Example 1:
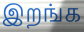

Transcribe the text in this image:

இறங்க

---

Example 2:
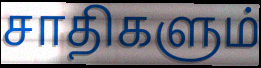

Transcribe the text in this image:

சாதிகளும்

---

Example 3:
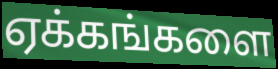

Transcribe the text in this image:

ஏக்கங்களை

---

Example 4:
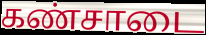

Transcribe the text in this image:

கண்சாடை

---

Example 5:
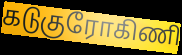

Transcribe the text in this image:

கடுகுரோகிணி